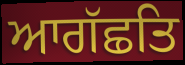
ਆਗੱਛਤਿ